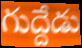
గుద్దేడు